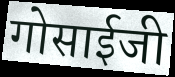
गोसाईजी